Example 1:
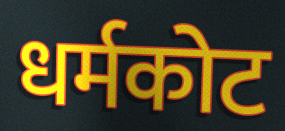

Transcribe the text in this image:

धर्मकोट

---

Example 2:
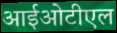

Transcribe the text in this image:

आईओटीएल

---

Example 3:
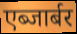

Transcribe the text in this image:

एब्जार्बर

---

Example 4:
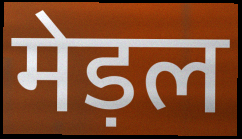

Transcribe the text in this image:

मेड़ल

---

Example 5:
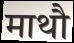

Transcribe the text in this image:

माथौ